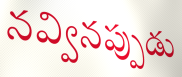
నవ్వినప్పుడు